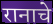
रानाचे